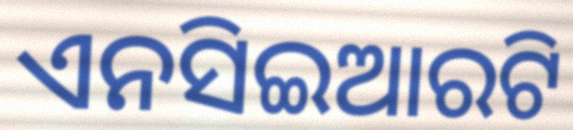
ଏନସିଇଆରଟି